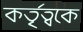
কর্তৃত্বকে